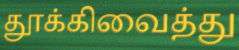
தூக்கிவைத்து